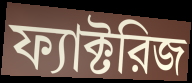
ফ্যাক্টরিজ